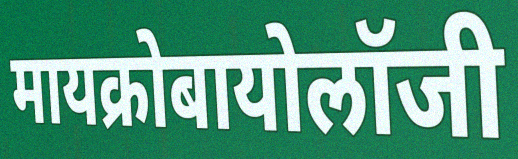
मायक्रोबायोलॉजी